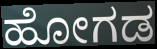
ಹೋಗಡ